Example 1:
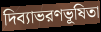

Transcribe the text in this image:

দিব্যাভরণভূষিতা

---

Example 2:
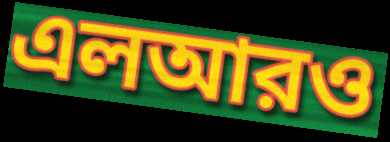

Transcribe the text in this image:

এলআরও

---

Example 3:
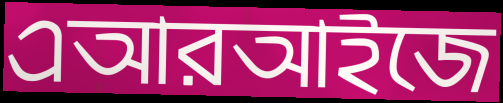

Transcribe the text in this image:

এআরআইজে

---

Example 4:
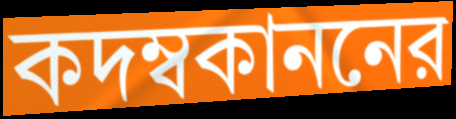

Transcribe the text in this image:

কদম্বকাননের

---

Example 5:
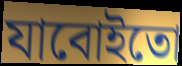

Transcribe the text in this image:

যাবোইতো